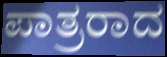
ಪಾತ್ರರಾದ